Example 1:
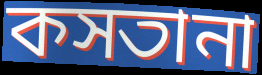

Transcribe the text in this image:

কসতানা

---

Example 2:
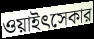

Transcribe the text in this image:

ওয়াইৎসেকার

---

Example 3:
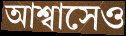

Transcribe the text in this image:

আশ্বাসেও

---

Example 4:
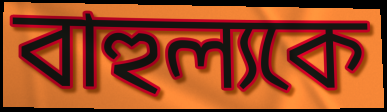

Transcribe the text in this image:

বাহুল্যকে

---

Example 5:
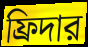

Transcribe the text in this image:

ফ্রিদার